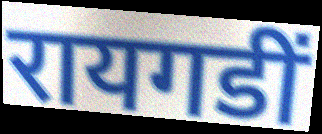
रायगडीं